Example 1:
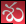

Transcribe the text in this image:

శు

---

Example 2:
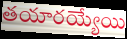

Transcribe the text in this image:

తయారయ్యేయి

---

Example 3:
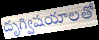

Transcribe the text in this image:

దృగ్విషయాలతో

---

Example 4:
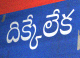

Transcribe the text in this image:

దిక్కేలేక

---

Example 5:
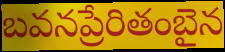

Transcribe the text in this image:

బవనప్రేరితంబైన